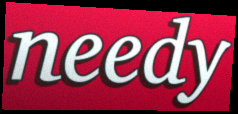
needy